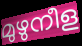
മുഴുനീള